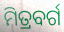
ମିତ୍ରବର୍ଗ